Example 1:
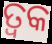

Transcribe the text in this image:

ତ୍ୱକ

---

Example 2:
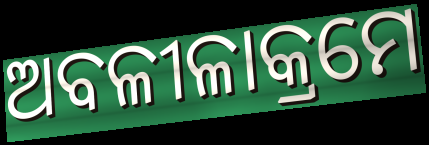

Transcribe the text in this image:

ଅବଳୀଳାକ୍ରମେ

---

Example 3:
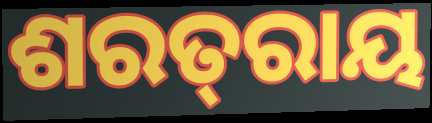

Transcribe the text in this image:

ଶରତ୍‌ରାୟ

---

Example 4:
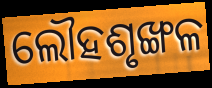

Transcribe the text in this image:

ଲୌହଶୃଙ୍ଖଳ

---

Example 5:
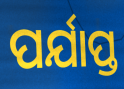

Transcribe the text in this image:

ପର୍ଯାପ୍ତ